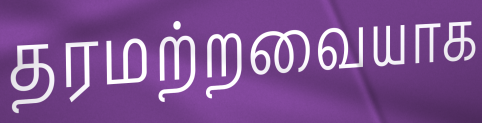
தரமற்றவையாக